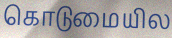
கொடுமையில